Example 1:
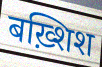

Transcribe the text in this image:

बख़्शिश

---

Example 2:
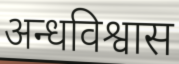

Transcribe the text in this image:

अन्धविश्वास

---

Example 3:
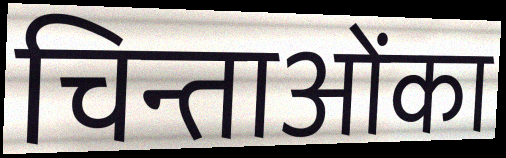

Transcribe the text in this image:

चिन्ताओंका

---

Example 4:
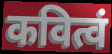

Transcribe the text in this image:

कवित्वं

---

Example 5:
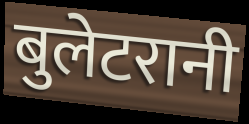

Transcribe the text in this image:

बुलेटरानी